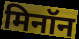
मिनॉन